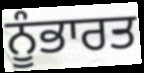
ਨੂੰਭਾਰਤ